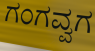
ಗಂಗವ್ವಗ